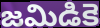
జమిడికె